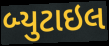
બ્યુટાઇલ